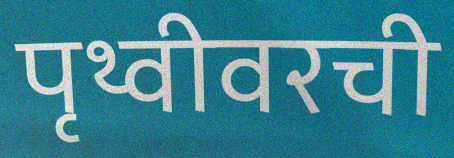
पृथ्वीवरची